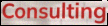
Consulting